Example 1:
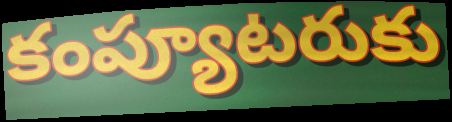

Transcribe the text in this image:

కంప్యూటరుకు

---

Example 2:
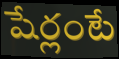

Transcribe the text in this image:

షేర్లంటే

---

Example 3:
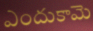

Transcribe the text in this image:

ఎందుకామె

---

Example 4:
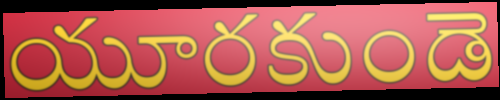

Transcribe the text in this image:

యూరకుండె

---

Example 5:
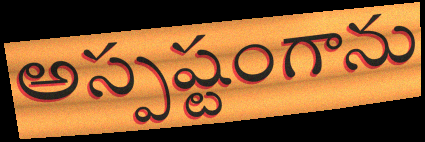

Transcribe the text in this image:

అస్పష్టంగాను